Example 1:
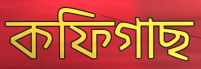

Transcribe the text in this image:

কফিগাছ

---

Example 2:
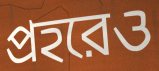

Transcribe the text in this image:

প্রহরেও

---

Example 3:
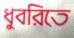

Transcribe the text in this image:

ধুবরিতে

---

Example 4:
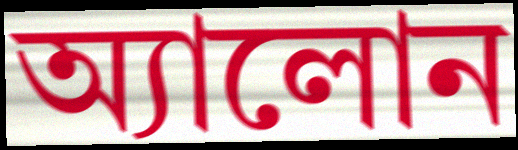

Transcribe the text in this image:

অ্যালোন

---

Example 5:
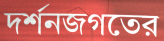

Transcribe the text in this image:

দর্শনজগতের